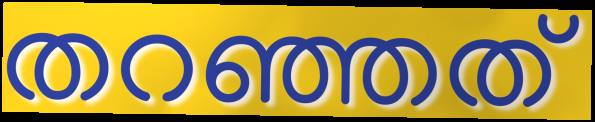
തറഞ്ഞത്